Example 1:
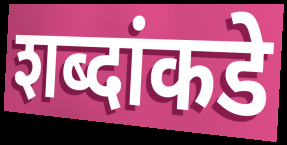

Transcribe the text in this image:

शब्दांकडे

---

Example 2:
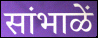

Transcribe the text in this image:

सांभाळें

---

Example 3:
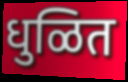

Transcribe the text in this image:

धुळित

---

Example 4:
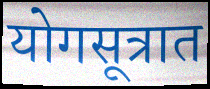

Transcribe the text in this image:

योगसूत्रात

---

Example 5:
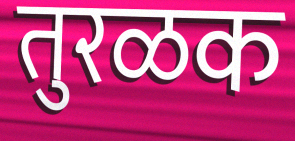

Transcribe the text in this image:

तुरळक